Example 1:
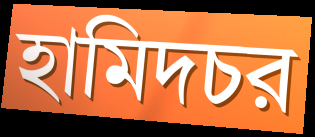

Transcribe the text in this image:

হামিদচর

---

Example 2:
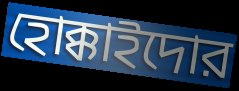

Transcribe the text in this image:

হোক্কাইদোর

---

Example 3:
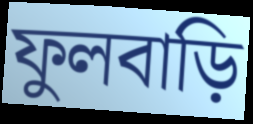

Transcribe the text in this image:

ফুলবাড়ি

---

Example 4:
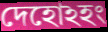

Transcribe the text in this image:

দেহোঽহং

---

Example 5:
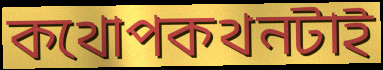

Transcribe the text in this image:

কথোপকথনটাই